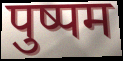
पुष्पम